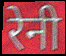
रेनी